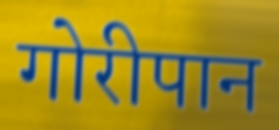
गोरीपान